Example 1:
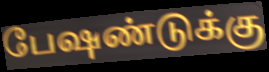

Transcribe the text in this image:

பேஷண்டுக்கு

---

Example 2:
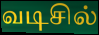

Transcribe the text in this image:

வடிசில்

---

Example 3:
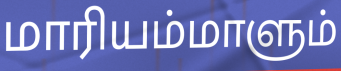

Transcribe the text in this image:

மாரியம்மாளும்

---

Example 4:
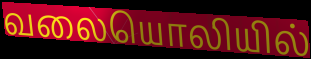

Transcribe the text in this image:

வலையொலியில்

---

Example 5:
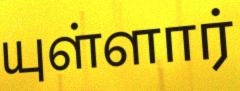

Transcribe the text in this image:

யுள்ளார்